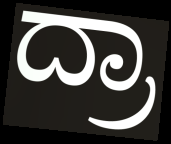
ದ್ರಾ